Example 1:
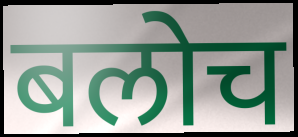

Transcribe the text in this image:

बलोच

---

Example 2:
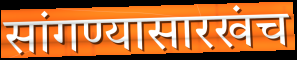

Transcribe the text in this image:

सांगण्यासारखंच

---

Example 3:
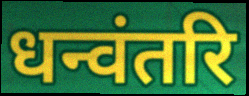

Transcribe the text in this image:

धन्वंतरि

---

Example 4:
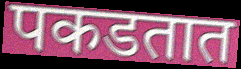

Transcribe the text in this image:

पकडतात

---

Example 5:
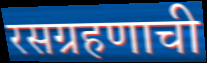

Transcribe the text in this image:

रसग्रहणाची